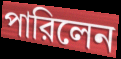
পারিলেন